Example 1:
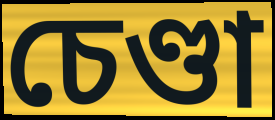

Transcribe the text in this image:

চেণ্ডা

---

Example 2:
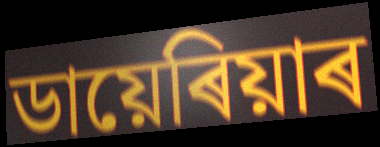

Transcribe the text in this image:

ডায়েৰিয়াৰ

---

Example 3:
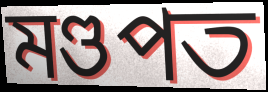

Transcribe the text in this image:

মণ্ডপত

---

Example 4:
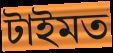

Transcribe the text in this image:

টাইমত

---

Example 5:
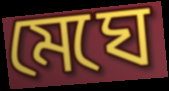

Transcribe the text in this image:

মেঘে